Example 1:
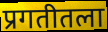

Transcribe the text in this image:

प्रगतीतला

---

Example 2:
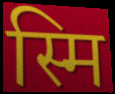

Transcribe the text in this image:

स्मि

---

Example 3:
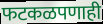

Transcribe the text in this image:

फटकळपणाही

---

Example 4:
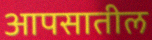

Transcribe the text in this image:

आपसातील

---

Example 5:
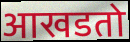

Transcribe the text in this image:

आखडतो